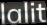
lalit